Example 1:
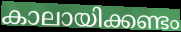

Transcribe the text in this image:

കാലായിക്കണ്ടം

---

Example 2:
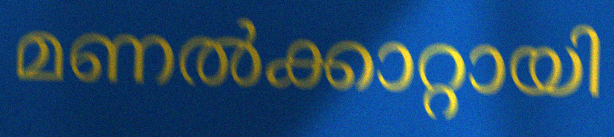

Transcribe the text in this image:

മണൽക്കാറ്റായി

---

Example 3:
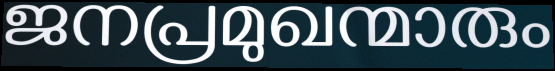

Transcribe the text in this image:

ജനപ്രമുഖന്മാരും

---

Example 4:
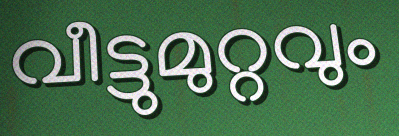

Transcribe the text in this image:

വീട്ടുമുറ്റവും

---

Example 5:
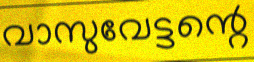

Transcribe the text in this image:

വാസുവേട്ടന്റെ